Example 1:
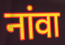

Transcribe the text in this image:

नांवा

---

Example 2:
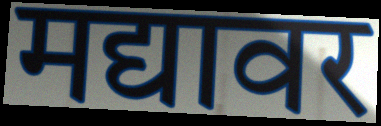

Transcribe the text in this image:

मद्यावर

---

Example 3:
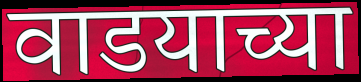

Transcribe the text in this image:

वाडयाच्या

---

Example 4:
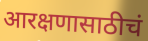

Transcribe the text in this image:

आरक्षणासाठीचं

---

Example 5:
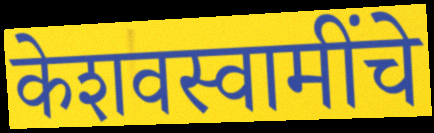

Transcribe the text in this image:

केशवस्वामींचे